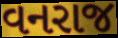
વનરાજ